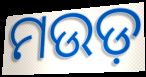
ମଉଡ଼